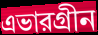
এভারগ্রীন